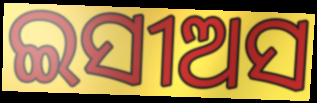
ଇସୀଅସ